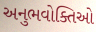
અનુભવોક્તિઓ